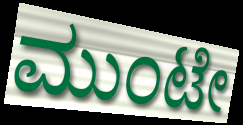
ಮುಂಟೇ